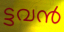
ട്ടവൻ